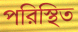
পরিস্থিত